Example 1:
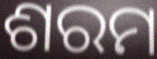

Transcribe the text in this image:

ଶରମ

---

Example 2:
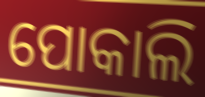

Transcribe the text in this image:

ପୋକାଲି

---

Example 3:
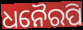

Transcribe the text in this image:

ଧନୈରପି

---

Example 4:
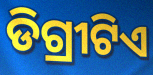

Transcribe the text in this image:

ଡିଗ୍ରୀଟିଏ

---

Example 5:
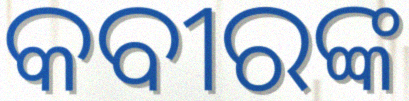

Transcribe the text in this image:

କବୀରଙ୍କ